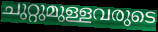
ചുറ്റുമുള്ളവരുടെ